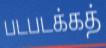
படபடக்கத்